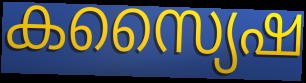
കസ്യൈഷ